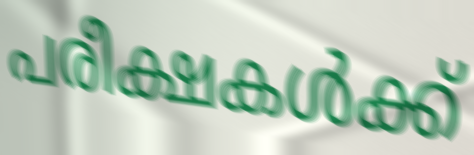
പരീക്ഷകൾക്ക്